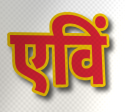
एविं